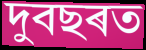
দুবছৰত